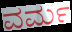
ವರ್ಮ